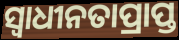
ସ୍ବାଧୀନତାପ୍ରାପ୍ତ